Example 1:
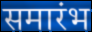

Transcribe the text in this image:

समारंभ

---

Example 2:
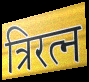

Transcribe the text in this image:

त्रिरत्न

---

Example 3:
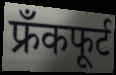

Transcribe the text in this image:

फ्रँकफूर्ट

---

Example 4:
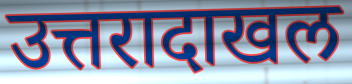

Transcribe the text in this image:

उत्तरादाखल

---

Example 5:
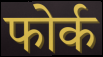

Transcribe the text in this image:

फोर्क